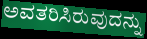
ಅವತರಿಸಿರುವುದನ್ನು